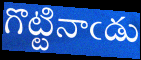
గొట్టినాఁడు